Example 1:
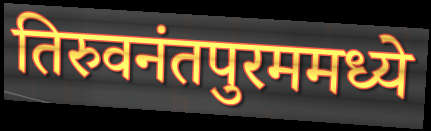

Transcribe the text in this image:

तिरुवनंतपुरममध्ये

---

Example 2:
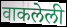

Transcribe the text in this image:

वाकलेली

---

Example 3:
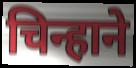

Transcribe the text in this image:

चिन्हाने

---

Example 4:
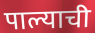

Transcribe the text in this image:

पाल्याची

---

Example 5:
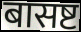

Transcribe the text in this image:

बासष्ट